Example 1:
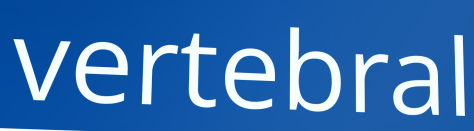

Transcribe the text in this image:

vertebral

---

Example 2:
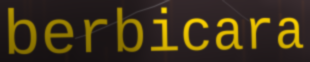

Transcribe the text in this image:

berbicara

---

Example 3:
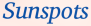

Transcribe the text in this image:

Sunspots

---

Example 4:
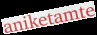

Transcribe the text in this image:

aniketamte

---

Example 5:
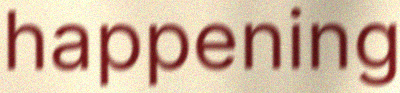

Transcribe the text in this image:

happening